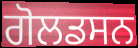
ਗੋਲਡਸਨ